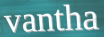
vantha